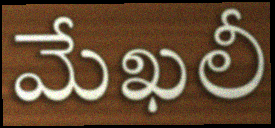
మేఖలీ